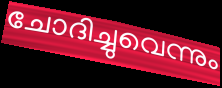
ചോദിച്ചുവെന്നും